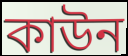
কাউন